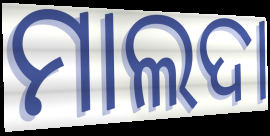
ମାଲଦା